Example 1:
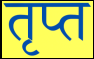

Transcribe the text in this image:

तृप्त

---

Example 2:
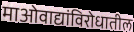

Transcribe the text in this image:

माओवाद्यांविरोधातील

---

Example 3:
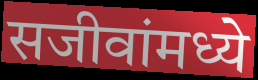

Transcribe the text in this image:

सजीवांमध्ये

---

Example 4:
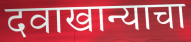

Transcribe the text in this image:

दवाखान्याचा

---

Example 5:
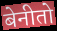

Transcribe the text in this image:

बेनीतो